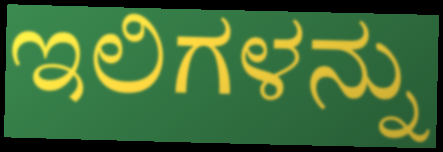
ಇಲಿಗಳನ್ನು